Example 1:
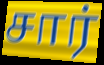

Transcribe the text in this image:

சார்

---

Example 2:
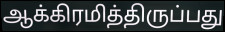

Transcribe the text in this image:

ஆக்கிரமித்திருப்பது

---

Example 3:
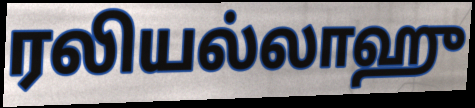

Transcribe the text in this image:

ரலியல்லாஹு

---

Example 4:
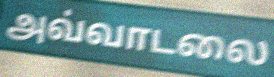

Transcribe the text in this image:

அவ்வாடலை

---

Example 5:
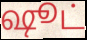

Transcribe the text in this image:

ஷூட்